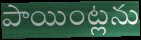
పాయింట్లను